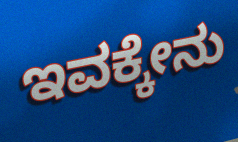
ಇವಕ್ಕೇನು